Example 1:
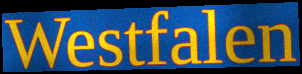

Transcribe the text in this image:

Westfalen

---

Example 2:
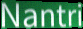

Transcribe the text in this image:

Nantri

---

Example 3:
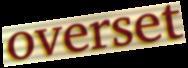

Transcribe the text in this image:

overset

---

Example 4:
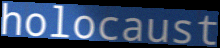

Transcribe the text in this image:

holocaust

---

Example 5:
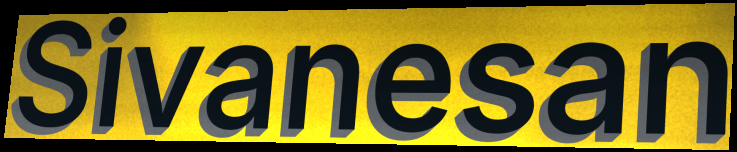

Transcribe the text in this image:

Sivanesan